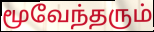
மூவேந்தரும்